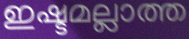
ഇഷ്ടമല്ലാത്ത